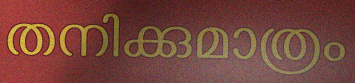
തനിക്കുമാത്രം